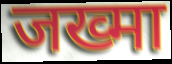
जख्मा